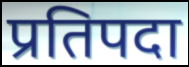
प्रतिपदा